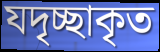
যদৃচ্ছাকৃত